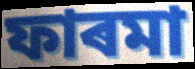
ফাৰমা